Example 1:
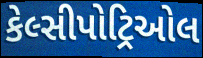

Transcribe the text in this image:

કેલ્સીપોટ્રિઓલ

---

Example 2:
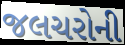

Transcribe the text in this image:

જલચરોની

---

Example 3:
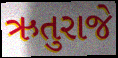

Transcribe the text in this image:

ઋતુરાજે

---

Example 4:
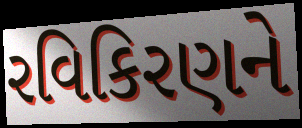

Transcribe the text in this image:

રવિકિરણને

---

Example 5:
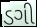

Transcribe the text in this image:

ડગી